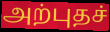
அற்புதச்